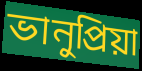
ভানুপ্রিয়া